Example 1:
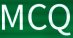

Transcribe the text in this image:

MCQ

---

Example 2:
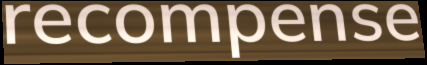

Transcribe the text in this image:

recompense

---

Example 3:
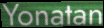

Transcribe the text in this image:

Yonatan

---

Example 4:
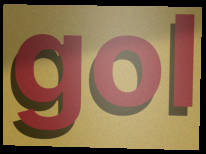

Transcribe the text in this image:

gol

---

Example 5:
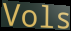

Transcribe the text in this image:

Vols